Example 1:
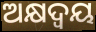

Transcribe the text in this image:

ଅକ୍ଷଦ୍ବୟ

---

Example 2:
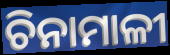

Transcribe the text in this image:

ଚିନାମାଳୀ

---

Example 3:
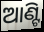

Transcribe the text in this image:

ଆଣ୍ଟି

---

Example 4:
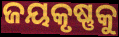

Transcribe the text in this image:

ଜୟକୃଷ୍ଣକୁ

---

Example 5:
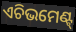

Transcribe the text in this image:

ଏଚିଭମେଣ୍ଟ୍